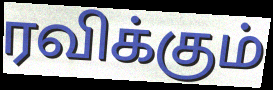
ரவிக்கும்